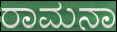
ರಾಮನಾ